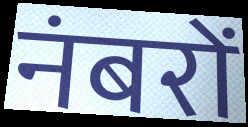
नंबरों